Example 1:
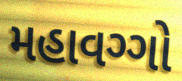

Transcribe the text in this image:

મહાવગ્ગો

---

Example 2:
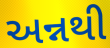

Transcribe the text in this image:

અન્નથી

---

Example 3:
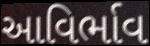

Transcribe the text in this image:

આવિર્ભાવ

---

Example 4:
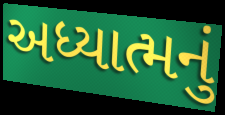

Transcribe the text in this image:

અધ્યાત્મનું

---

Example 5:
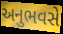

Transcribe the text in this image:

અનુભવસે